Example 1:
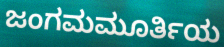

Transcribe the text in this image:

ಜಂಗಮಮೂರ್ತಿಯ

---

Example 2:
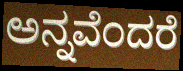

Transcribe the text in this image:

ಅನ್ನವೆಂದರೆ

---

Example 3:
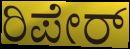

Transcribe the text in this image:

ರಿಪೇರ್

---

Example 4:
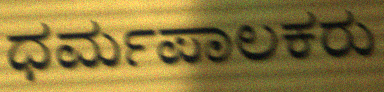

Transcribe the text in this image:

ಧರ್ಮಪಾಲಕರು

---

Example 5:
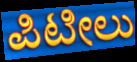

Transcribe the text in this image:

ಪಿಟೀಲು